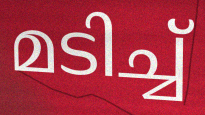
മടിച്ച്